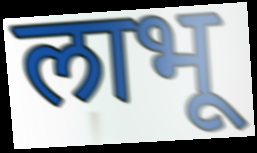
लाभू